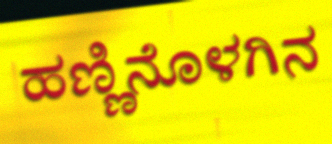
ಹಣ್ಣಿನೊಳಗಿನ